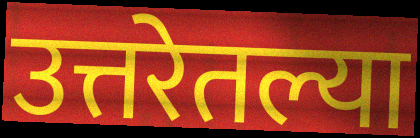
उत्तरेतल्या